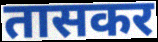
तासकर